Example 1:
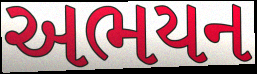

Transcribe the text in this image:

અભયન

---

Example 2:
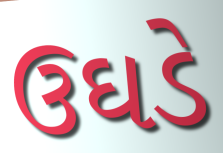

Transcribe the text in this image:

ઉઘડે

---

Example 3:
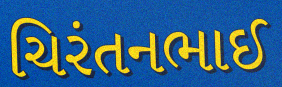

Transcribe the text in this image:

ચિરંતનભાઈ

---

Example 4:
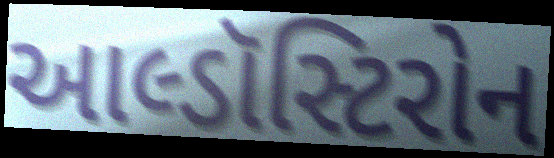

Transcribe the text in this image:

આલ્ડૉસ્ટિરોન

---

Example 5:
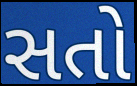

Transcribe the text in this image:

સતો